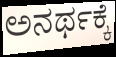
ಅನರ್ಥಕ್ಕೆ